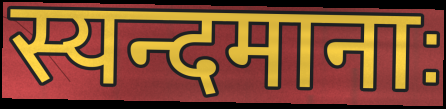
स्यन्दमानाः